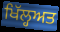
ਖਿੱਲ੍ਹਅਤ